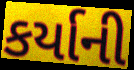
કર્યાની